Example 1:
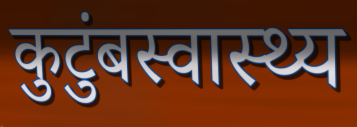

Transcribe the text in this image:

कुटुंबस्वास्थ्य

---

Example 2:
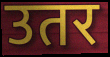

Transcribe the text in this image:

उतर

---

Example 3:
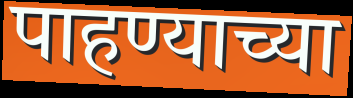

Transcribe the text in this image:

पाहण्याच्या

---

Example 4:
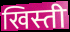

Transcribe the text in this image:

खिस्ती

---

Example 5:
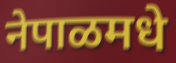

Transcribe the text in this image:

नेपाळमधे